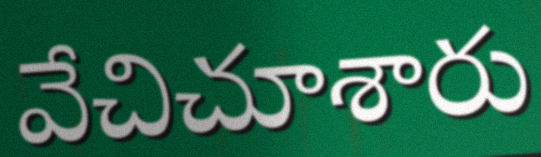
వేచిచూశారు